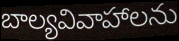
బాల్యవివాహాలను